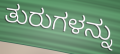
ತುರುಗಳನ್ನು